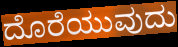
ದೊರೆಯುವುದು